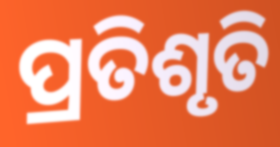
ପ୍ରତିଶୃତି